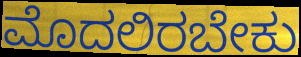
ಮೊದಲಿರಬೇಕು